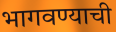
भागवण्याची